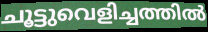
ചൂട്ടുവെളിച്ചത്തിൽ